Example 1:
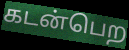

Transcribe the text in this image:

கடன்பெற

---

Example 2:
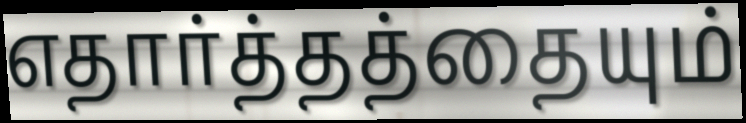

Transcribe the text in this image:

எதார்த்தத்தையும்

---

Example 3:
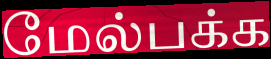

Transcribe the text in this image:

மேல்பக்க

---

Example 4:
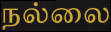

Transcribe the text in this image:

நல்லை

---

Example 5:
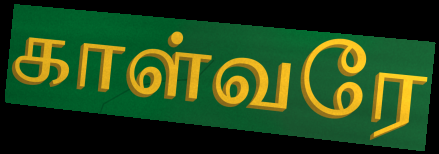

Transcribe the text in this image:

காள்வரே